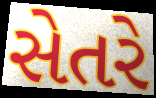
સેતરે